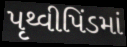
પૃથ્વીપિંડમાં